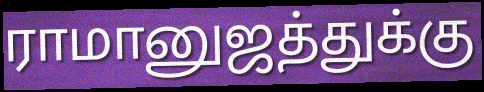
ராமானுஜத்துக்கு